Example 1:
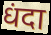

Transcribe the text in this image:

धंदा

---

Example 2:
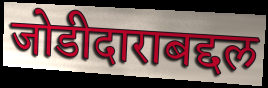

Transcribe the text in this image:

जोडीदाराबद्दल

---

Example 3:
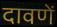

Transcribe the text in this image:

दावणें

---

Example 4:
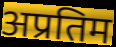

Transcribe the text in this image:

अप्रतिम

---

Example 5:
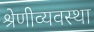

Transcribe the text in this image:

श्रेणीव्यवस्था